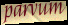
parvum